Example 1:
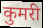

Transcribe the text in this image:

कुमरी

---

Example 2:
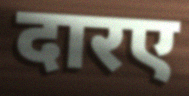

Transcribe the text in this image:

दारए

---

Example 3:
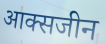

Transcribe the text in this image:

आक्सजीन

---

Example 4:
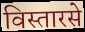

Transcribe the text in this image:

विस्तारसे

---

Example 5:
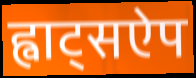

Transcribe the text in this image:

ह्वाट्सऐप